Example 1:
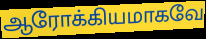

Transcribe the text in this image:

ஆரோக்கியமாகவே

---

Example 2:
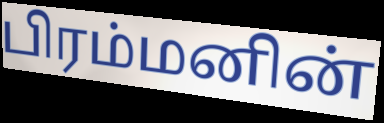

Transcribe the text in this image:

பிரம்மனின்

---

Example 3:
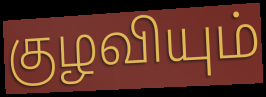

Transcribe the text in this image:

குழவியும்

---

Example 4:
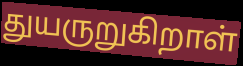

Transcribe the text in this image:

துயருறுகிறாள்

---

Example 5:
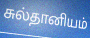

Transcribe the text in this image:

சுல்தானியம்